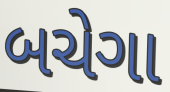
બચેગા